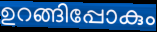
ഉറങ്ങിപ്പോകും